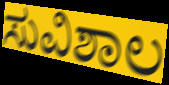
ಸುವಿಶಾಲ